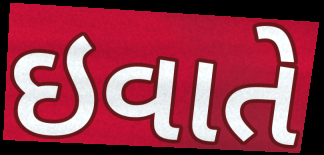
ઇવાતે